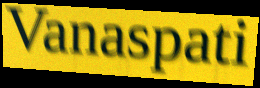
Vanaspati